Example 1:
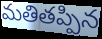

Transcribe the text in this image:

మతితప్పిన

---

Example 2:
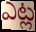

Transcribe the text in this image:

ఎట్ల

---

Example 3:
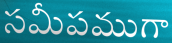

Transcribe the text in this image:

సమీపముగా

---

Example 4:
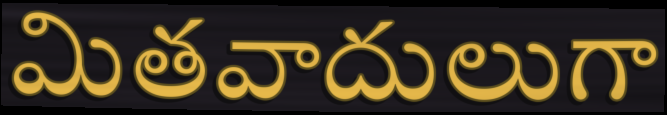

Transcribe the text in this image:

మితవాదులుగా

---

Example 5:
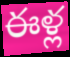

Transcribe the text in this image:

ఈళ్ల